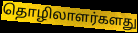
தொழிலாளர்களது